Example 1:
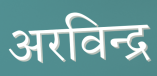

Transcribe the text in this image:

अरविन्द्र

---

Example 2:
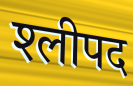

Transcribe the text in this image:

श्लीपद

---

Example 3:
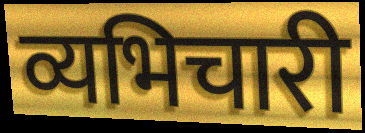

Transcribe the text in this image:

व्यभिचारी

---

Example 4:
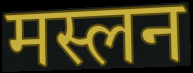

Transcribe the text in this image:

मस्लन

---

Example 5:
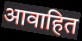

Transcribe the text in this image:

आवाहित